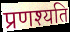
प्रणश्यति